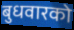
बुधवारको